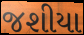
જશીયા